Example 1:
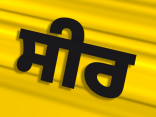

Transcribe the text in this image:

ਸੀਰ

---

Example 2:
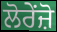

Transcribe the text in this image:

ਲੋਰੇਂਜ਼ੋ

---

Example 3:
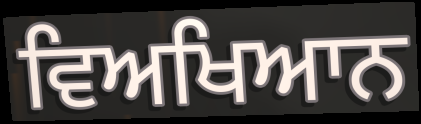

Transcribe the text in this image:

ਵਿਅਖਿਆਨ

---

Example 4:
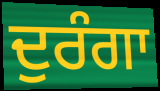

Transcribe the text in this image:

ਦੁਰੰਗਾ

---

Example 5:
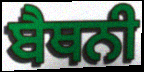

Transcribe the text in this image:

ਬੈਥਨੀ